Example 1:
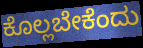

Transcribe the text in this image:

ಕೊಲ್ಲಬೇಕೆಂದು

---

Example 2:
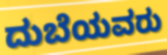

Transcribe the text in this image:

ದುಬೆಯವರು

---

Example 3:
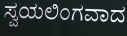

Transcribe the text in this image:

ಸ್ವಯಲಿಂಗವಾದ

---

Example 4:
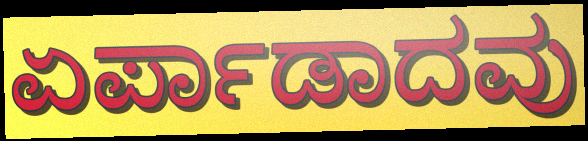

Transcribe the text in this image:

ಏರ್ಪಾಡಾದವು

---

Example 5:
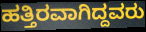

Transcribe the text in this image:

ಹತ್ತಿರವಾಗಿದ್ದವರು